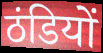
ठंडियों